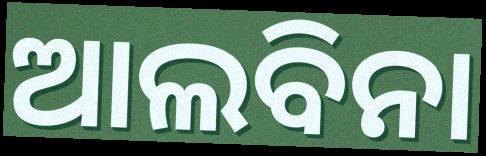
ଆଲବିନା